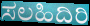
ಸಲಹಿದಿರಿ